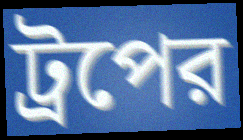
ট্রপের